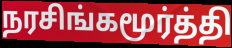
நரசிங்கமூர்த்தி